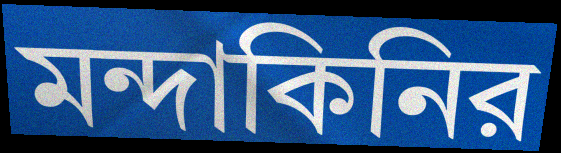
মন্দাকিনির